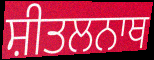
ਸ਼ੀਤਲਨਾਥ